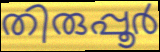
തിരുപ്പൂർ